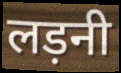
लड़नी